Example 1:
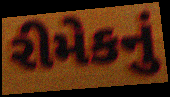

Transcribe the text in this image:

રીમેકનું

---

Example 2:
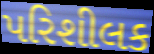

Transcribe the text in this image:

પરિશીલક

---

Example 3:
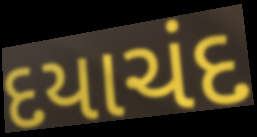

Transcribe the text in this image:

દયાચંદ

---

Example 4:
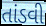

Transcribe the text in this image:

તાંડવી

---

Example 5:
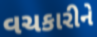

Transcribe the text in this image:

વચકારીને